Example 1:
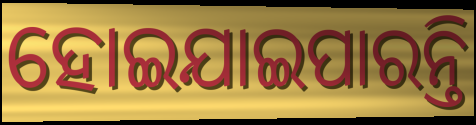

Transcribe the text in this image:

ହୋଇଯାଇପାରନ୍ତି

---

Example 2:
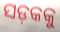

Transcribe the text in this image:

ସଡ଼କକୁ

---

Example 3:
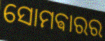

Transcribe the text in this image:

ସୋମଵାରର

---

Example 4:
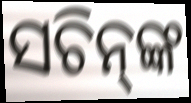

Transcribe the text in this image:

ସଚିନ୍‌ଙ୍କ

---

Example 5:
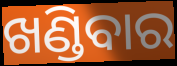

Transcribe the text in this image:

ଖଣ୍ଡିବାର